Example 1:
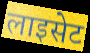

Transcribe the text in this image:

लाइसेट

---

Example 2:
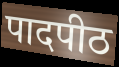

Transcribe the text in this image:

पादपीठ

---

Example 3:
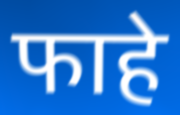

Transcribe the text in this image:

फाहे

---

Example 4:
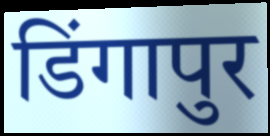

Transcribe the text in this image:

डिंगापुर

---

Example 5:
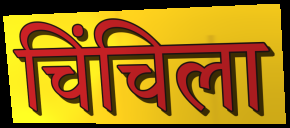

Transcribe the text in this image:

चिंचिला